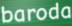
baroda